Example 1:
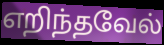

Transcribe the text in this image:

எறிந்தவேல்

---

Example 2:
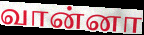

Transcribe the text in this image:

வான்னா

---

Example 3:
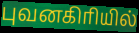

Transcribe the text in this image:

புவனகிரியில்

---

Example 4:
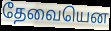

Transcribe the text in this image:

தேவையென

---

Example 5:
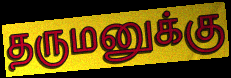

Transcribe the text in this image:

தருமனுக்கு